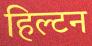
हिल्टन